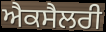
ਐਕਸੈਲਰੀ